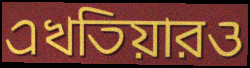
এখতিয়ারও